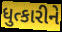
ધુત્કારીને